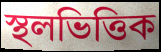
স্থলভিত্তিক